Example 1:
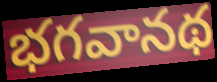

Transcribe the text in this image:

భగవానథ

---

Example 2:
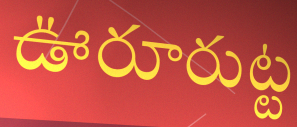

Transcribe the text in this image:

ఊరూరుట్ట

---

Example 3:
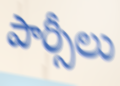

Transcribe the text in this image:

పార్సీలు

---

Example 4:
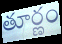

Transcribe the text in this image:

తూర్ణం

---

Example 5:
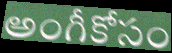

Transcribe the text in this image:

అంగీకోసం